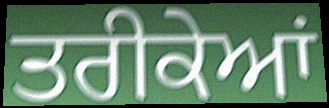
ਤਰੀਕੇਆਂ